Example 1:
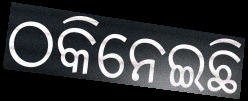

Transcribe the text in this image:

ଠକିନେଇଛି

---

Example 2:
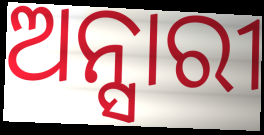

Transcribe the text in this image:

ଅନ୍ସାରୀ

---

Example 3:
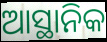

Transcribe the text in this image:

ଆସ୍ଥାନିକ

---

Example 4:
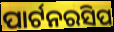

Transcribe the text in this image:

ପାର୍ଟନରସିପ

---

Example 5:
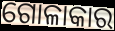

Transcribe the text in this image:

ଗୋଳାକାର